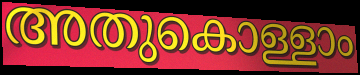
അതുകൊള്ളാം